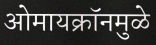
ओमायक्रॉनमुळे